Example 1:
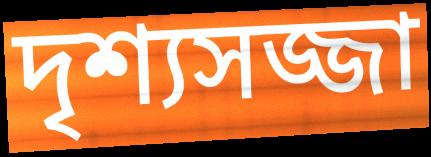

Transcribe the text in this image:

দৃশ্যসজ্জা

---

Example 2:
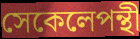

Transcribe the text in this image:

সেকেলেপন্থী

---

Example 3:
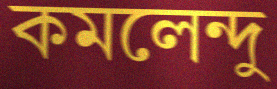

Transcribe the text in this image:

কমলেন্দু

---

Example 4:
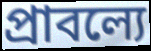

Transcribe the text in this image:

প্রাবল্যে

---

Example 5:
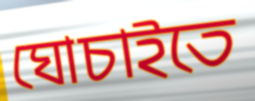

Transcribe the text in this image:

ঘোচাইতে